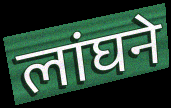
लांघने